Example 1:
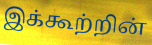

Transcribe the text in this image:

இக்கூற்றின்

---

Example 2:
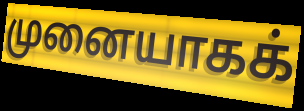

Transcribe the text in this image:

முனையாகக்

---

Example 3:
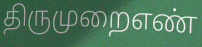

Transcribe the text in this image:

திருமுறைஎண்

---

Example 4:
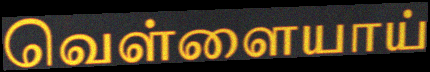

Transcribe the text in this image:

வெள்ளையாய்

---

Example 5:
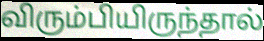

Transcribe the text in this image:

விரும்பியிருந்தால்